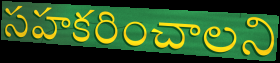
సహకరించాలని